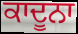
ਕਾਦੂਨਾ